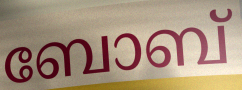
ബോബ്